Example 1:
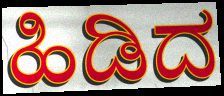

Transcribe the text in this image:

ಹಿಡಿದ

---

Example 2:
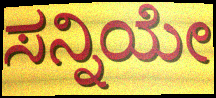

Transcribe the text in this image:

ಸನ್ನಿಯೇ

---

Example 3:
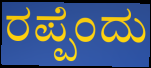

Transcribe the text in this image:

ರಪ್ಪೆಂದು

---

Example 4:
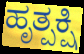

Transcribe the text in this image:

ಹೃತ್ಪಕ್ಷಿ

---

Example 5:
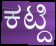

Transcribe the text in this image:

ಕಟ್ದಿ